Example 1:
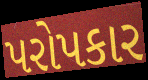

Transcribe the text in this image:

પરોપકાર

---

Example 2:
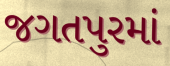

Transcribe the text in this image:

જગતપુરમાં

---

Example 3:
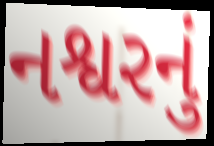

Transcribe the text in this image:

નશ્વરનું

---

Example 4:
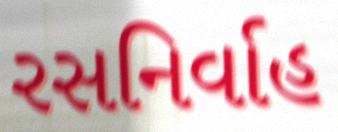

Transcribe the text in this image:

રસનિર્વાહ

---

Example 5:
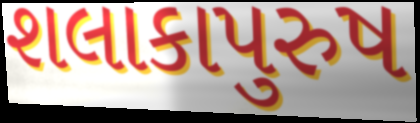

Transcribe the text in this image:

શલાકાપુરુષ